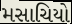
મસાચિયો